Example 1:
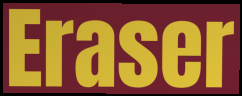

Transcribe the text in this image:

Eraser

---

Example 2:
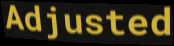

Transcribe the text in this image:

Adjusted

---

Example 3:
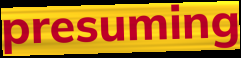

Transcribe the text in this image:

presuming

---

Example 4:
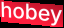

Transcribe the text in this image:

hobey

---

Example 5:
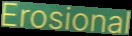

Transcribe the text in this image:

Erosional